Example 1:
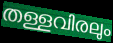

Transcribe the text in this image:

തള്ളവിരലും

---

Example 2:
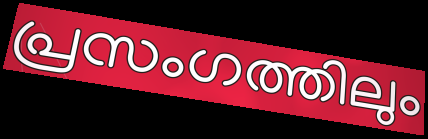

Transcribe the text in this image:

പ്രസംഗത്തിലും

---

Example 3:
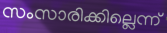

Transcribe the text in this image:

സംസാരിക്കില്ലെന്ന്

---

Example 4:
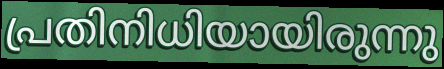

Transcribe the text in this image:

പ്രതിനിധിയായിരുന്നു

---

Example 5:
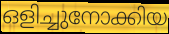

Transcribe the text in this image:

ഒളിച്ചുനോക്കിയ